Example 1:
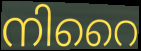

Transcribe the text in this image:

നിറൈ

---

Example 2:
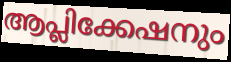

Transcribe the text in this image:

ആപ്ലിക്കേഷനും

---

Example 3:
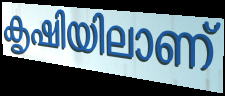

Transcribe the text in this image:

കൃഷിയിലാണ്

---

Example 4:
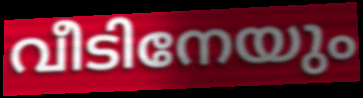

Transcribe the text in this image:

വീടിനേയും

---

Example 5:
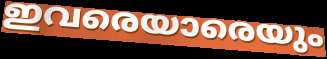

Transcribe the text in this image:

ഇവരെയാരെയും